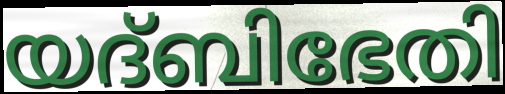
യദ്ബിഭേതി